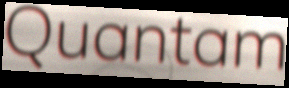
Quantam